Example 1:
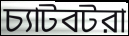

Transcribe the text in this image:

চ্যাটবটরা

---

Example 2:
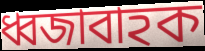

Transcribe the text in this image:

ধ্বজাবাহক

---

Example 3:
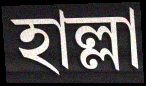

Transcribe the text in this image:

হাল্লা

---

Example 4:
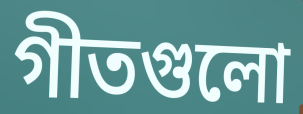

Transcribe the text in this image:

গীতগুলো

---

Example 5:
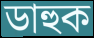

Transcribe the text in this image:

ডাহুক